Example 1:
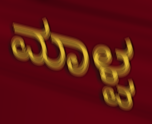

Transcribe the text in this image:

ಮಾಳ್ವ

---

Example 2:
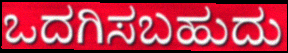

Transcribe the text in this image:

ಒದಗಿಸಬಹುದು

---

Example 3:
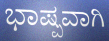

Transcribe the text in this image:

ಭಾಷ್ಪವಾಗಿ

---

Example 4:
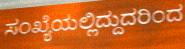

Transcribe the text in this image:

ಸಂಖ್ಯೆಯಲ್ಲಿದ್ದುದರಿಂದ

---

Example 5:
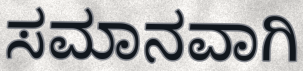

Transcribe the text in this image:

ಸಮಾನವಾಗಿ